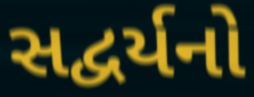
સદ્વર્યનો